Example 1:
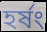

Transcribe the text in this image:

হর্ষং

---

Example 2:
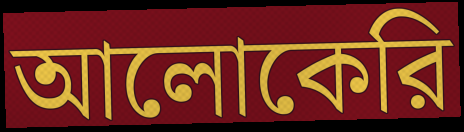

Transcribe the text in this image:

আলোকেরি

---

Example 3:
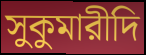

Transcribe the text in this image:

সুকুমারীদি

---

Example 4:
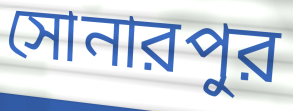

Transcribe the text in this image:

সোনারপুর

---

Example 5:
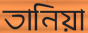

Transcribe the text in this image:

তানিয়া